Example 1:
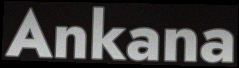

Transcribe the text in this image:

Ankana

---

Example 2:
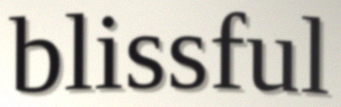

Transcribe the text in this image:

blissful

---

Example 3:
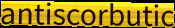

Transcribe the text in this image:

antiscorbutic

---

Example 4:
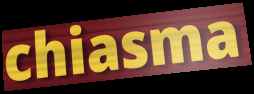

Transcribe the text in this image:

chiasma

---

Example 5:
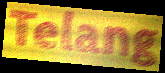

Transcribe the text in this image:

Telang